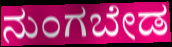
ನುಂಗಬೇಡ